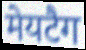
मेयटैग